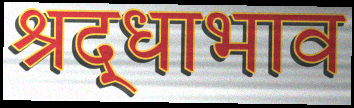
श्रद्धाभाव